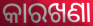
କାରଖଣା